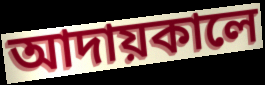
আদায়কালে